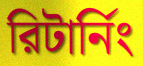
রিটার্নিং